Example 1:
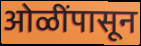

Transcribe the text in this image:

ओळींपासून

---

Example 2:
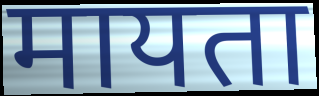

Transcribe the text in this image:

मायता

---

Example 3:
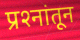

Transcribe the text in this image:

प्रश्नांतून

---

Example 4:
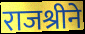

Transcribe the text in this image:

राजश्रीने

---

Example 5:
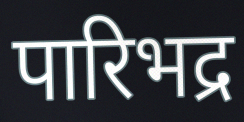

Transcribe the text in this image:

पारिभद्र